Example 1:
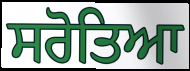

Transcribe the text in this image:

ਸਰੋਤਿਆ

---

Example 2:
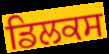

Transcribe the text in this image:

ਡਿਲਕਸ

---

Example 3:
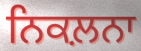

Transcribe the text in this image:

ਨਿਕਲ਼ਨਾ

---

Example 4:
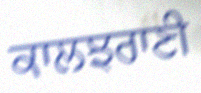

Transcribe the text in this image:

ਕਾਲਝਰਾਣੀ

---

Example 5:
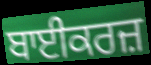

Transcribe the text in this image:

ਬਾਈਕਰਜ਼